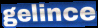
gelince